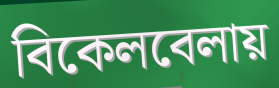
বিকেলবেলায়